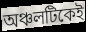
অঞ্চলটিকেই